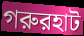
গরুরহাট